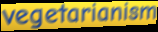
vegetarianism